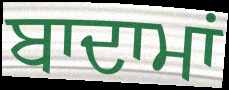
ਬਾਦਾਮਾਂ